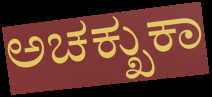
ಅಚಕ್ಖುಕಾ